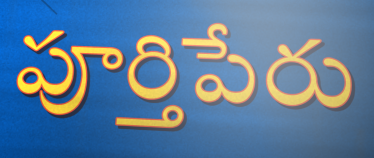
పూర్తిపేరు